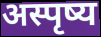
अस्पृष्य